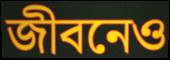
জীবনেও